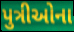
પુત્રીઓના